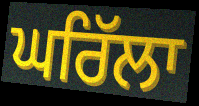
ਘਰਿੱਲਾ